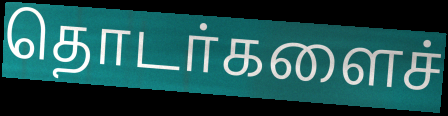
தொடர்களைச்